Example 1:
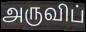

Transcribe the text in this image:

அருவிப்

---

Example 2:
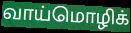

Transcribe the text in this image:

வாய்மொழிக்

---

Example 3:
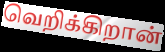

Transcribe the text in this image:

வெறிக்கிறான்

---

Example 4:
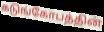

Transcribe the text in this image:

கடுங்கோபத்தின்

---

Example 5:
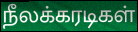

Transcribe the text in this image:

நீலக்கரடிகள்